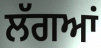
ਲੱਗਆਂ